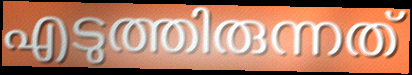
എടുത്തിരുന്നത്